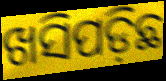
ଖସିପଡ଼ିଛ